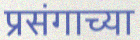
प्रसंगाच्या